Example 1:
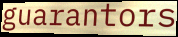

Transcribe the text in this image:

guarantors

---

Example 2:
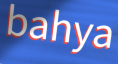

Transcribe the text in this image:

bahya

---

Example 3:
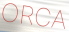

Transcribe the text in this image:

ORCA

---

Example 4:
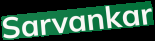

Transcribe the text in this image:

Sarvankar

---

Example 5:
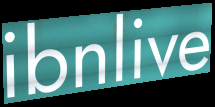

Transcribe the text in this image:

ibnlive